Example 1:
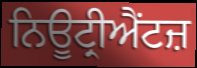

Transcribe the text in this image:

ਨਿਊਟ੍ਰੀਐਂਟਜ਼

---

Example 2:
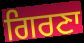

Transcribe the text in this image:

ਗਿਰਣਾ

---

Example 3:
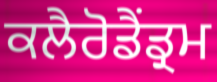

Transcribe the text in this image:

ਕਲੈਰੋਡੈਂਡ੍ਰਮ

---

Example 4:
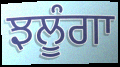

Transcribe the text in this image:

ਝਲੂੰਗਾ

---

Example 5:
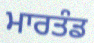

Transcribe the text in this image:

ਮਾਰਤੰਡ